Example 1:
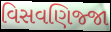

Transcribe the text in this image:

વિસવણિજ્જા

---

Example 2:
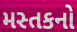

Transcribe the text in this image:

મસ્તકનો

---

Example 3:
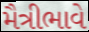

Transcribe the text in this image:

મૈત્રીભાવે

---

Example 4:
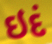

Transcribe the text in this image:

ઇદં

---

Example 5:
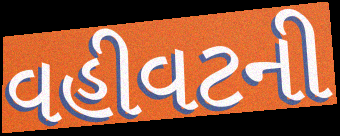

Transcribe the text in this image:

વહીવટની